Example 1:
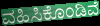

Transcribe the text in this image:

ವಹಿಸಿಕೊಂಡಿವೆ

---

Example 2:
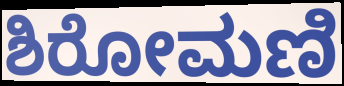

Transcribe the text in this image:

ಶಿರೋಮಣಿ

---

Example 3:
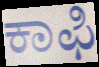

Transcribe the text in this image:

ಕಾಫಿ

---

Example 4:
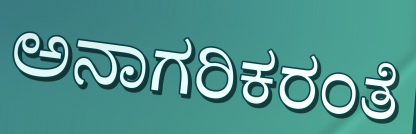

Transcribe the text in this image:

ಅನಾಗರಿಕರಂತೆ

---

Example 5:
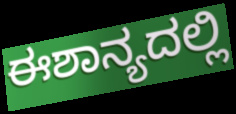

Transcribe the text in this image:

ಈಶಾನ್ಯದಲ್ಲಿ